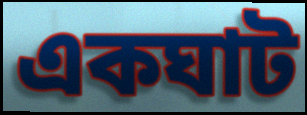
একঘাট